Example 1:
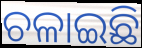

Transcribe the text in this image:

ଚଳାଇଛି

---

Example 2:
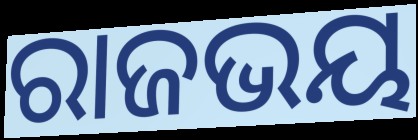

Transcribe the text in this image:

ରାଜଭୟ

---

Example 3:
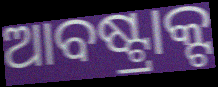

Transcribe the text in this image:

ଆବଷ୍ଟ୍ରାକ୍ଟ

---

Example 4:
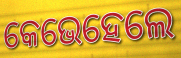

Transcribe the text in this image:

କେଭେହେଲେ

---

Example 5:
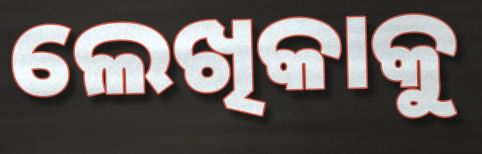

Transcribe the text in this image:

ଲେଖିକାକୁ